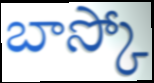
బాస్కో